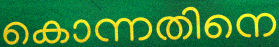
കൊന്നതിനെ